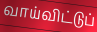
வாய்விட்டுப்